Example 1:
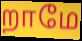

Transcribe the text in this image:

றாமே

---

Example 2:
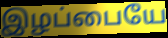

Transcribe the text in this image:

இழப்பையே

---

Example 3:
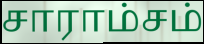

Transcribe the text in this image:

சாராம்சம்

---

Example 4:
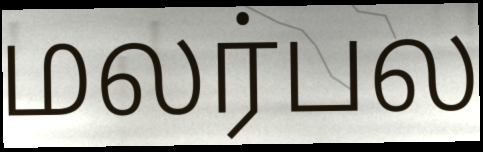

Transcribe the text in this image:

மலர்பல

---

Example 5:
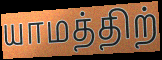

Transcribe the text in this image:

யாமத்திற்